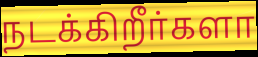
நடக்கிறீர்களா